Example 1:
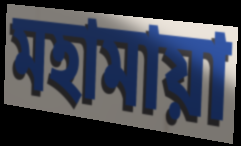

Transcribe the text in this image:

মহামায়া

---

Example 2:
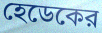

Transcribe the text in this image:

হেডেকের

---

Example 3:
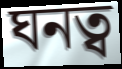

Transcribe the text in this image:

ঘনত্ব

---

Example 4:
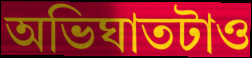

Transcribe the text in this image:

অভিঘাতটাও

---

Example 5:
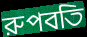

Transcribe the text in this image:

রুপবতি